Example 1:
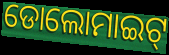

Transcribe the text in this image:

ଡୋଲୋମାଇଟ୍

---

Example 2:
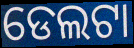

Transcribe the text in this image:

ଡେଲଟା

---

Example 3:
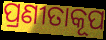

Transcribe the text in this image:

ପ୍ରଣୀତାକୂପ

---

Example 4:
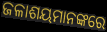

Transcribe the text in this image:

ଜଳାଶୟମାନଙ୍କରେ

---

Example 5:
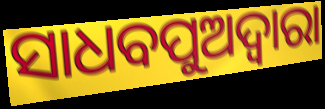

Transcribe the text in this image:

ସାଧବପୁଅଦ୍ୱାରା